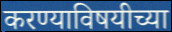
करण्याविषयीच्या